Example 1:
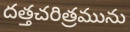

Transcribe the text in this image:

దత్తచరిత్రమును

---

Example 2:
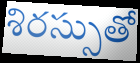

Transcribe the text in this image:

శిరస్సుతో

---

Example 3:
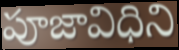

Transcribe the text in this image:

పూజావిధిని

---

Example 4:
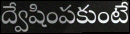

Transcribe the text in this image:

ద్వేషింపకుంటే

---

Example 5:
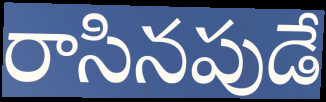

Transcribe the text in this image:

రాసినపుడే